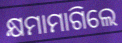
କ୍ଷମାମାଗିଲେ